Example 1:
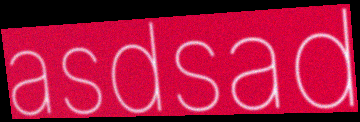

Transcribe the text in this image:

asdsad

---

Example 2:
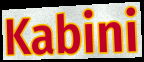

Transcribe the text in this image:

Kabini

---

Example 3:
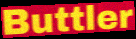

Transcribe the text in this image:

Buttler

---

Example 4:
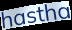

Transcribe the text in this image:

hastha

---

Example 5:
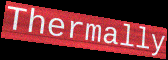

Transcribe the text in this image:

Thermally